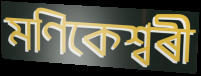
মণিকেশ্বৰী